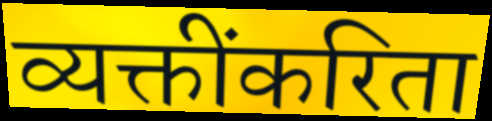
व्यक्तींकरिता